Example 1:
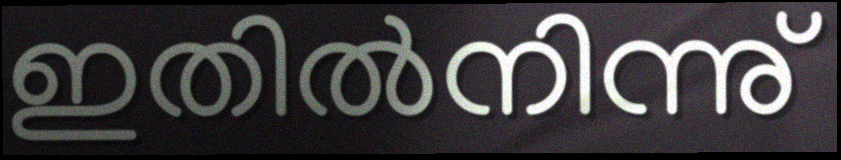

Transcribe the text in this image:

ഇതിൽനിന്നു്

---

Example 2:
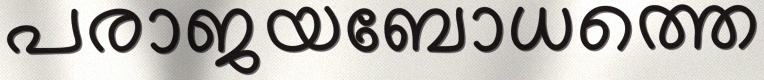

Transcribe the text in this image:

പരാജയബോധത്തെ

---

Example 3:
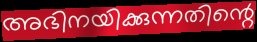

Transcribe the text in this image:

അഭിനയിക്കുന്നതിന്റെ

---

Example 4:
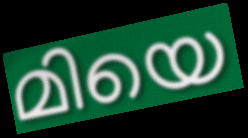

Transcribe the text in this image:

മിയെ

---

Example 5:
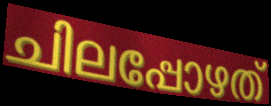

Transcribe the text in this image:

ചിലപ്പോഴത്